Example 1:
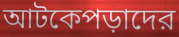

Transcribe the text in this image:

আটকেপড়াদের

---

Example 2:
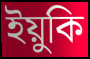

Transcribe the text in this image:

ইয়ুকি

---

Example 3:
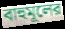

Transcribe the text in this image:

বাহুমূলের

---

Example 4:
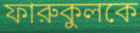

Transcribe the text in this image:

ফারুকুলকে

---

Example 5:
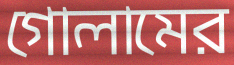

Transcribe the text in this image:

গোলামের